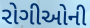
રોગીઓની